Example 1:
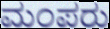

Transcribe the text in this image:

ಮಂಪರು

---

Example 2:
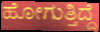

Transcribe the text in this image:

ಹೋಗುತ್ತಿದ್ದೆ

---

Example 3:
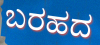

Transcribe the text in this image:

ಬರಹದ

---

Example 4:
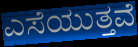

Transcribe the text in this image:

ಎಸೆಯುತ್ತವೆ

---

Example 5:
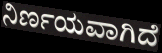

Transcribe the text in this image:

ನಿರ್ಣಯವಾಗಿದೆ